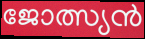
ജോത്സ്യൻ